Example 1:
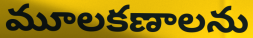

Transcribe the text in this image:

మూలకణాలను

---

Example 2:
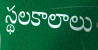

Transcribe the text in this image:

స్థలకాలాలు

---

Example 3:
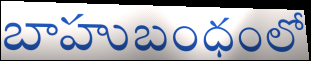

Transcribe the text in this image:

బాహుబంధంలో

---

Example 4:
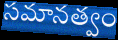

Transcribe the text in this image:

సమానత్వం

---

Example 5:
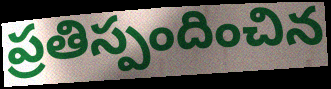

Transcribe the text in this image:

ప్రతిస్పందించిన